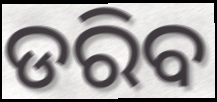
ଡରିବ